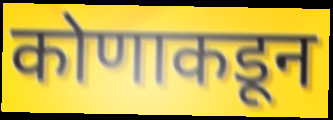
कोणाकडून